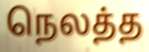
நெலத்த